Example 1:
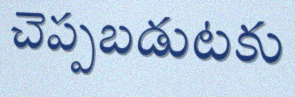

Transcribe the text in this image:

చెప్పబడుటకు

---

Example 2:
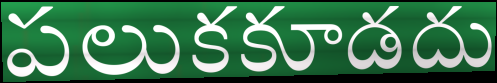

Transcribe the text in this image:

పలుకకూడదు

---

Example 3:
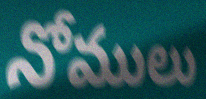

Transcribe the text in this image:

నోములు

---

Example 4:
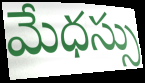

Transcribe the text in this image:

మేధస్సు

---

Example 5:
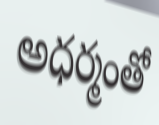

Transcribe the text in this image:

అధర్మంతో